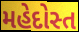
મહેદોસ્ત